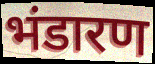
भंडारण